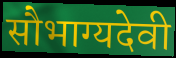
सौभाग्यदेवी